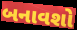
બનાવશો